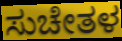
ಸುಚೇತಳ